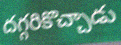
దగ్గరికొచ్చాడు